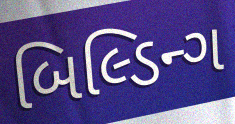
બિલ્ડિન્ગ